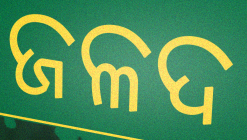
ଜଳଦ